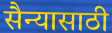
सैन्यासाठी